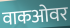
वाकओवर